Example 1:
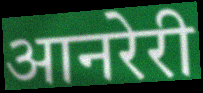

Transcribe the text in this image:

आनरेरी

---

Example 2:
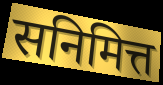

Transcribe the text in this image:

सनिमित्त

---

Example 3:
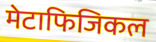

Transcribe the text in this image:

मेटाफिजिकल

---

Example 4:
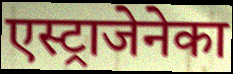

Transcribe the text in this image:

एस्ट्राजेनेका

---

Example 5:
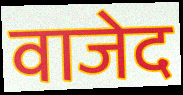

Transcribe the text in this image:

वाजेद